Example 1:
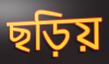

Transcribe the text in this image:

ছড়িয়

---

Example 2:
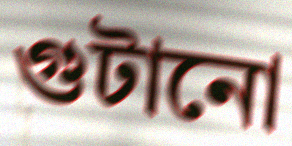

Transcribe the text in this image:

গুটানো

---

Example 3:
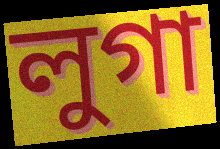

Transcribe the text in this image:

লুগা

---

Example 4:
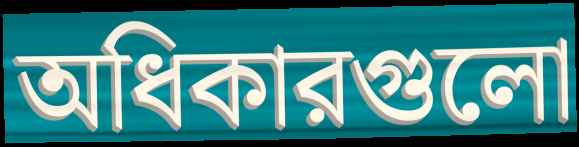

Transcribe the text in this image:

অধিকারগুলো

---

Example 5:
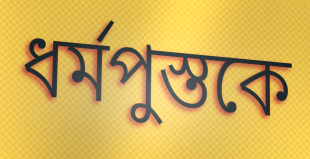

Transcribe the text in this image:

ধর্মপুস্তকে